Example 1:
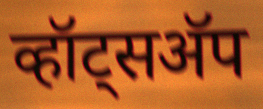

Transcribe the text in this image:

व्हॉट्सॲप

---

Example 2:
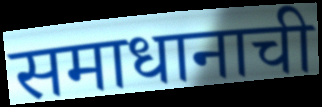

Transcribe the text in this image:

समाधानाची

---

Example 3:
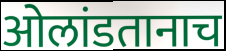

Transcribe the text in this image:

ओलांडतानाच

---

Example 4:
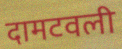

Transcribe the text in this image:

दामटवली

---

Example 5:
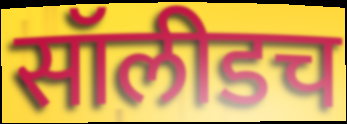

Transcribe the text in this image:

सॉलीडच